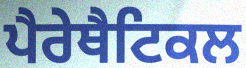
ਪੈਰੇਥੈਟਿਕਲ